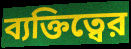
ব্যক্তিত্বের